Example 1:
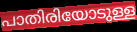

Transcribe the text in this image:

പാതിരിയോടുള്ള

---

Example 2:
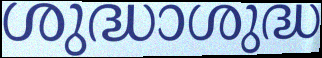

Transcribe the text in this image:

ശുദ്ധാശുദ്ധ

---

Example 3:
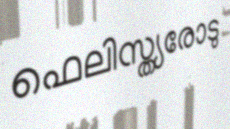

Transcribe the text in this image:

ഫെലിസ്ത്യരോടു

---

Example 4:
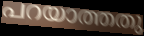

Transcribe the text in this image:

പറയാത്തതു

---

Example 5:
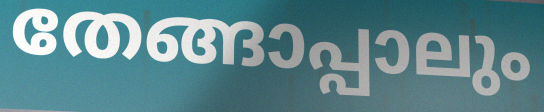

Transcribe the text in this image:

തേങ്ങാപ്പാലും